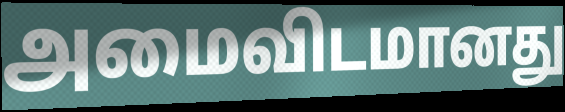
அமைவிடமானது